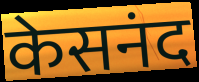
केसनंद